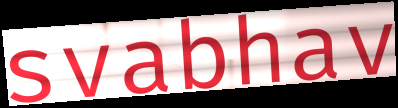
svabhav